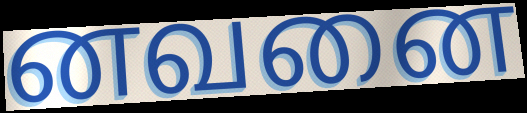
னவனை